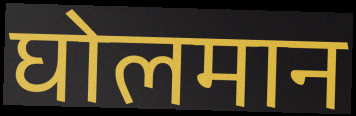
घोलमान